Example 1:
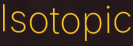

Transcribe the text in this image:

Isotopic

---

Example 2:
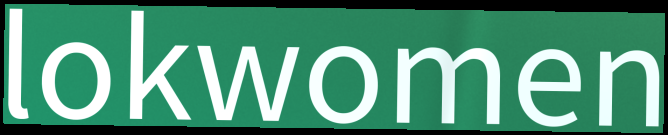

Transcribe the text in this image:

lokwomen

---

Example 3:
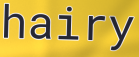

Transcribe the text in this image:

hairy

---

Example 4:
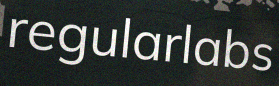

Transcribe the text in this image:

regularlabs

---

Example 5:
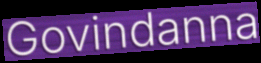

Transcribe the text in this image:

Govindanna